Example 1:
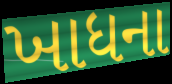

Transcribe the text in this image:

ખાધના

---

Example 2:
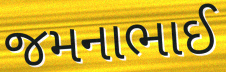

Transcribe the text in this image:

જમનાભાઈ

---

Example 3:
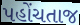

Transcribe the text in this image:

પહોંચતાજ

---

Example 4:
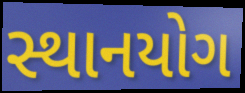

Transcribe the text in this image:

સ્થાનયોગ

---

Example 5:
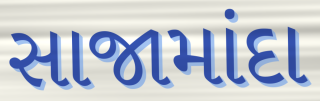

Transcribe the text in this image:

સાજામાંદા